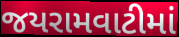
જયરામવાટીમાં